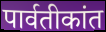
पार्वतीकांत